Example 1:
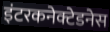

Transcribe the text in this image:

इंटरकनेक्टेडनेस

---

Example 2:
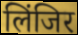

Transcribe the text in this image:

लिंजिर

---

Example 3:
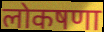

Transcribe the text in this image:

लोकषणा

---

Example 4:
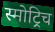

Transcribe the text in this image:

स्मोट्रिच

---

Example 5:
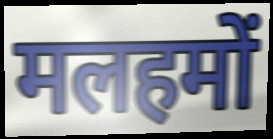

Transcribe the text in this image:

मलहमों